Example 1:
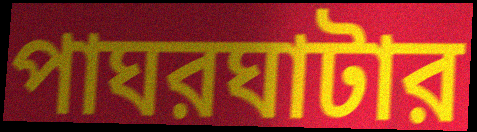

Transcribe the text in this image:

পাঘরঘাটার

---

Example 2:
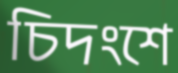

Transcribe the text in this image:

চিদংশে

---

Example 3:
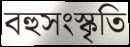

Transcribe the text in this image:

বহুসংস্কৃতি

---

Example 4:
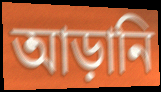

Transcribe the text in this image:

আড়ানি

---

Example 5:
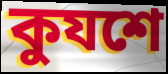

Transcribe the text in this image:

কুযশে